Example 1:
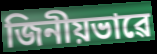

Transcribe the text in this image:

জিনীয়ভাৱে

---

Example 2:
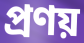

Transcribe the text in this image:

প্ৰণয়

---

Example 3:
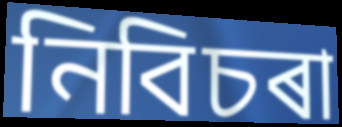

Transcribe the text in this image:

নিবিচৰা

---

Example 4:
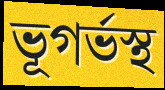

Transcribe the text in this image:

ভূগৰ্ভস্থ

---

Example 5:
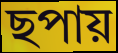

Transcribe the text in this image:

ছপায়